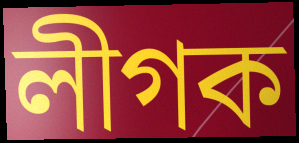
লীগক